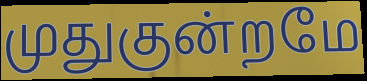
முதுகுன்றமே